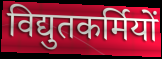
विद्युतकर्मियों